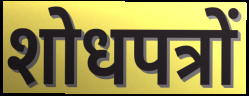
शोधपत्रों